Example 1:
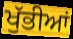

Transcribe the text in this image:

ਖੁੱਭੀਆਂ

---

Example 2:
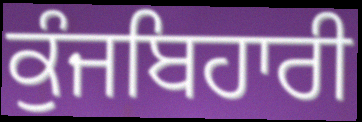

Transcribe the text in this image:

ਕੁੰਜਬਿਹਾਰੀ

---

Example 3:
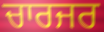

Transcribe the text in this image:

ਚਾਰਜਰ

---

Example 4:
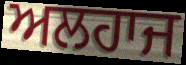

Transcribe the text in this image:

ਅਲਹਾਜ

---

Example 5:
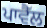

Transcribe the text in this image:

ਪਾਵੈੱਲ